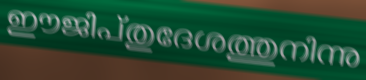
ഈജിപ്തുദേശത്തുനിന്നു